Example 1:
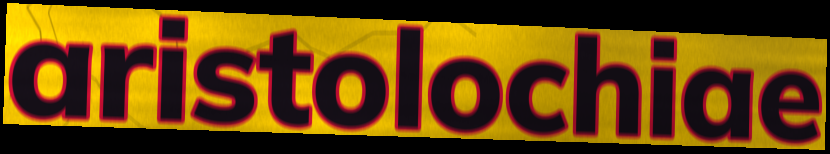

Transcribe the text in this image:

aristolochiae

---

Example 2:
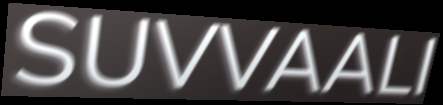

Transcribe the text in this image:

SUVVAALI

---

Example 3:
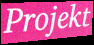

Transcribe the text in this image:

Projekt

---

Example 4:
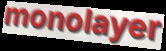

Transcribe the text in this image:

monolayer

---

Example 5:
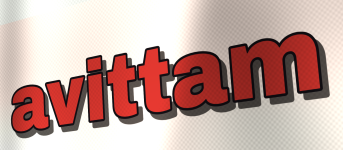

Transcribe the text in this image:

avittam